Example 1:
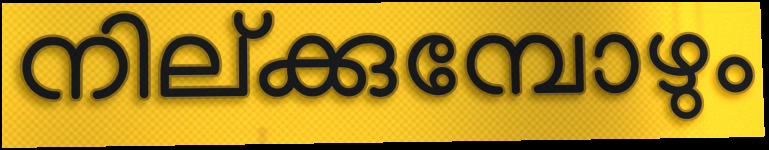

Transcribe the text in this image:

നില്ക്കുമ്പോഴും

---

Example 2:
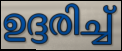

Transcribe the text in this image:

ഉദ്ദരിച്ച്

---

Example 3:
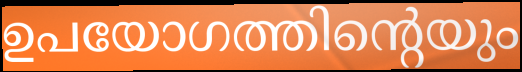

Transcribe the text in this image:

ഉപയോഗത്തിന്റെയും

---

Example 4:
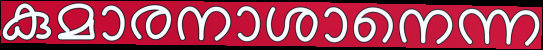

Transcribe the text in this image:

കുമാരനാശാനെന്ന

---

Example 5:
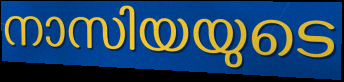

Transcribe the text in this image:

നാസിയയുടെ